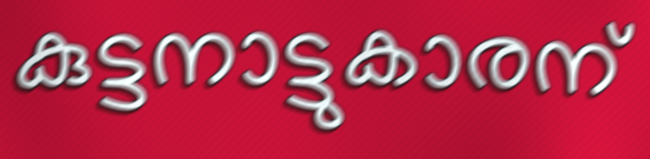
കുട്ടനാട്ടുകാരന്